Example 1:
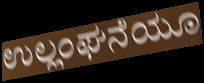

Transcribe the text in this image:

ಉಲ್ಲಂಘನೆಯೂ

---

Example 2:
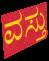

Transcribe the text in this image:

ವಸ್ತು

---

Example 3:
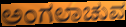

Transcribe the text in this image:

ಅಂಗಲಾಚುವ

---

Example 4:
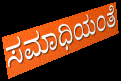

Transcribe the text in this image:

ಸಮಾಧಿಯಂತೆ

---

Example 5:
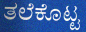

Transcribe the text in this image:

ತಲೆಕೊಟ್ಟ